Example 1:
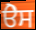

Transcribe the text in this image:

ੳੇਸ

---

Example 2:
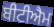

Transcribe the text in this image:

ਬੀਟੀਐਮ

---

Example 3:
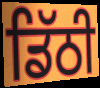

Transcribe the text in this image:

ਡਿੱਠੀ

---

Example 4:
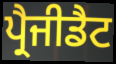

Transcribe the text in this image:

ਪ੍ਰੈਜੀਡੈਟ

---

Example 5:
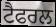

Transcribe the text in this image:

ਟੈਫਰਲ